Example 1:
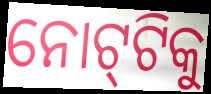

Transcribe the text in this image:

ନୋଟ୍‌ଟିକୁ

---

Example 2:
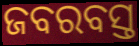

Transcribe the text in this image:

ଜବରବସ୍ତ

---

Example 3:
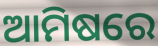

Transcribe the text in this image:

ଆମିଷରେ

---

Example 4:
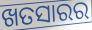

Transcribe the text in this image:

ଖତସାରର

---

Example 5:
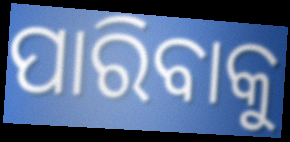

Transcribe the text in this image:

ପାରିବାକୁ